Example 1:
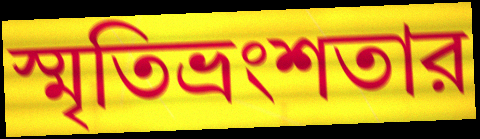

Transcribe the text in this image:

স্মৃতিভ্রংশতার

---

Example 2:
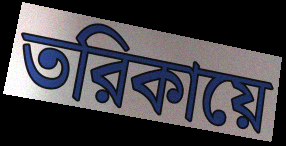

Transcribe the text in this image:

তরিকায়ে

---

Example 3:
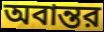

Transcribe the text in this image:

অবান্তর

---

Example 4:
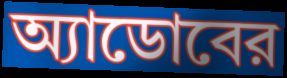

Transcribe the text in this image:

অ্যাডোবের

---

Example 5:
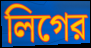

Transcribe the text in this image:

লিগের